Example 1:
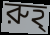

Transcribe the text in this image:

রুহ্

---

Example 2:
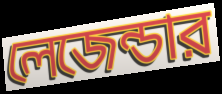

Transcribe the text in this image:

লেজেন্ডার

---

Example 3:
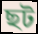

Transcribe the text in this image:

ছট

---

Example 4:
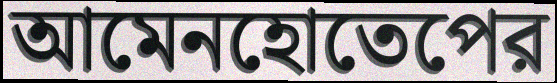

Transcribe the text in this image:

আমেনহোতেপের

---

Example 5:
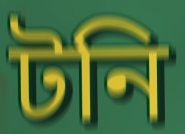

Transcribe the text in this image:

টনি